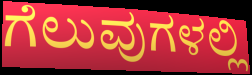
ಗೆಲುವುಗಳಲ್ಲಿ